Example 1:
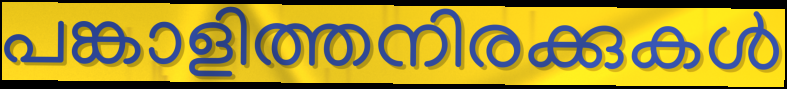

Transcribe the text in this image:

പങ്കാളിത്തനിരക്കുകൾ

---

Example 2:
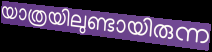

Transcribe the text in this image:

യാത്രയിലുണ്ടായിരുന്ന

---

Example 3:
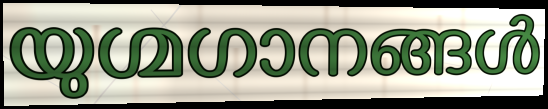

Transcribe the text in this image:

യുഗ്മഗാനങ്ങൾ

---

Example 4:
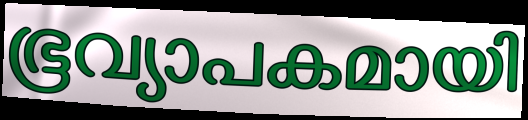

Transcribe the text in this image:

ഭൂവ്യാപകമായി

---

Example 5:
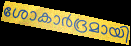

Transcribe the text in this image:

ശോകാർദ്രമായി